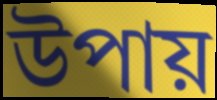
উপায়